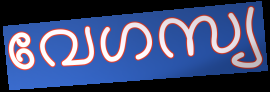
വേഗസ്യ